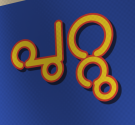
പുറ്റു